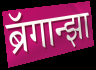
ब्रॅगान्झा